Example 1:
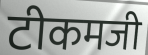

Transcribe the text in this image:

टीकमजी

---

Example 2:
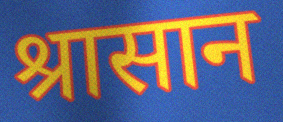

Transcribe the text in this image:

श्रासान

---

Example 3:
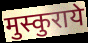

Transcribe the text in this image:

मुस्कुराये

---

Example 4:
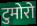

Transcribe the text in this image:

टुमोरो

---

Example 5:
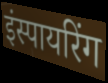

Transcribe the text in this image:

इंस्पायरिंग